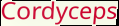
Cordyceps